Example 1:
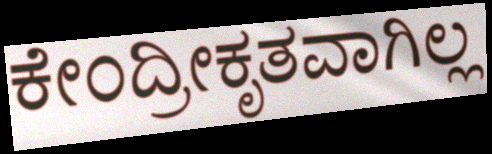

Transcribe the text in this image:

ಕೇಂದ್ರೀಕೃತವಾಗಿಲ್ಲ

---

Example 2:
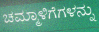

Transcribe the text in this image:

ಚಮ್ಮಾಳಿಗೆಗಳನ್ನು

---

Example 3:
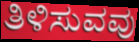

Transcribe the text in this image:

ತಿಳಿಸುವವು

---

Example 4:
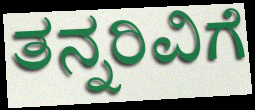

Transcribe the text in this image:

ತನ್ನರಿವಿಗೆ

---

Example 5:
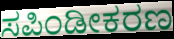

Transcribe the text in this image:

ಸಪಿಂಡೀಕರಣ